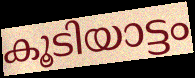
കൂടിയാട്ടം